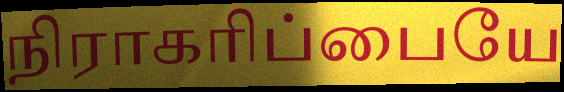
நிராகரிப்பையே